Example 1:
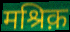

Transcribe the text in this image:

मश्रिक़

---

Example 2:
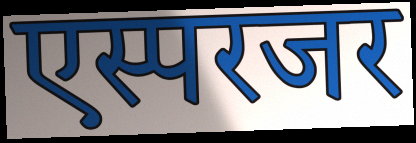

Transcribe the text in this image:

एस्परजर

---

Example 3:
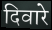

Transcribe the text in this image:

दिवारे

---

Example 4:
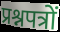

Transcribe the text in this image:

प्रश्नपत्रों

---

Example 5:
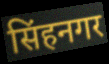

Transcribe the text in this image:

सिंहनगर